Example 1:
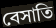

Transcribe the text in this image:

বেসাতি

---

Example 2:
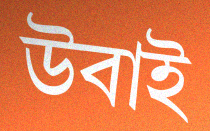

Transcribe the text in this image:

উবাই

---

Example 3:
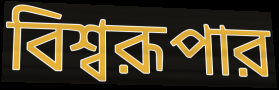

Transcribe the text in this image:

বিশ্বরূপার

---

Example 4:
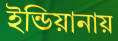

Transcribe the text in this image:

ইন্ডিয়ানায়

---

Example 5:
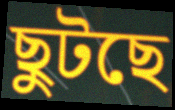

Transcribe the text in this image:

ছুটছে